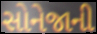
સોનેજાની